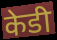
केडी